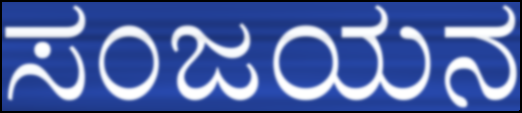
ಸಂಜಯನ